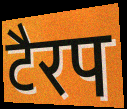
टैरप